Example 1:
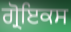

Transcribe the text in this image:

ਗ੍ਰੋਇਕਸ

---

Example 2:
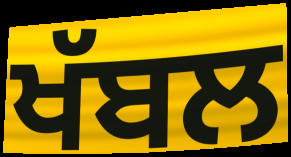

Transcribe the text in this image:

ਖੱਬਲ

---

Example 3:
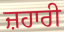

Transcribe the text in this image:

ਜ਼ਹਾਰੀ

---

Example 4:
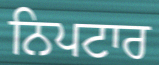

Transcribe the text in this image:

ਨਿਪਟਾਰ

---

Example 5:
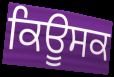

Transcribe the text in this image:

ਕਿਊਸਕ